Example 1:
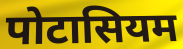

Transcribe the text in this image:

पोटासियम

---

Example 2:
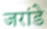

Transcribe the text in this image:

जरांडे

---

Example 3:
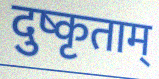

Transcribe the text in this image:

दुष्कृताम्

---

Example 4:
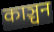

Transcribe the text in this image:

काञ्चन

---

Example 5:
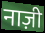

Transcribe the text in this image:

नाज़ी